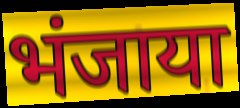
भंजाया